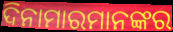
ଦିନାମାରମାନଙ୍କର